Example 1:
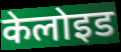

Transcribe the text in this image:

केलोइड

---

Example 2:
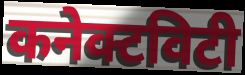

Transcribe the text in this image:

कनेक्टविटी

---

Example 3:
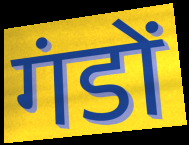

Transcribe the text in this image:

गंडों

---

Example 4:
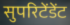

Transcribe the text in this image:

सुपरिटेंडेंट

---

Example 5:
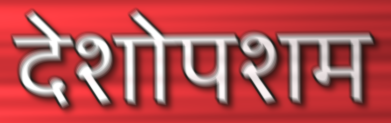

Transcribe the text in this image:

देशोपशम